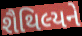
શૈથિલ્યને